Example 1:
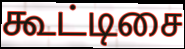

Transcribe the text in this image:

கூட்டிசை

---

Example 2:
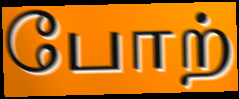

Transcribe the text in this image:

போற்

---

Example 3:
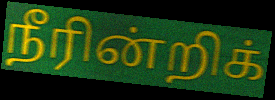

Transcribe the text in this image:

நீரின்றிக்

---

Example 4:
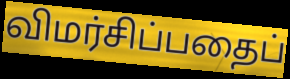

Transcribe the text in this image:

விமர்சிப்பதைப்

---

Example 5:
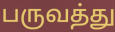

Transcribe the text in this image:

பருவத்து